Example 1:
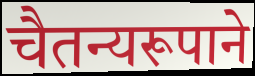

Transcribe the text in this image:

चैतन्यरूपाने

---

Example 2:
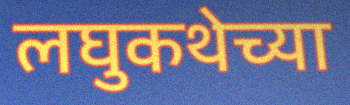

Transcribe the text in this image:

लघुकथेच्या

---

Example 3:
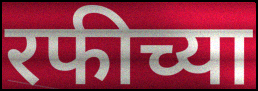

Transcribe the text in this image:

रफीच्या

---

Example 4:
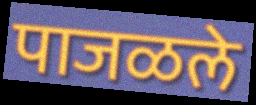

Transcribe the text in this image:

पाजळले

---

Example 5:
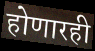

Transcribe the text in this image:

होणारही